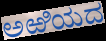
ಅಱಿಯದ